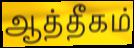
ஆத்தீகம்